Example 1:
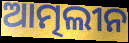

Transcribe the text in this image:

ଆତ୍ମଲୀନ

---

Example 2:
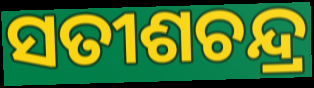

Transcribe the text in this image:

ସତୀଶଚନ୍ଦ୍ର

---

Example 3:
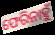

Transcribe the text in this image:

ଫେରିନାହୁଁ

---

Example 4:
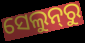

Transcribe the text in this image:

ସେଲୁନ୍‌ରୁ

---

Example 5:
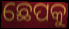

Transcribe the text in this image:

ଛେପକୁ